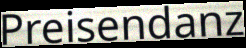
Preisendanz